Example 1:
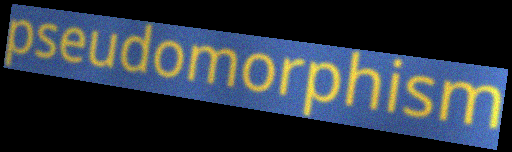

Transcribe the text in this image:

pseudomorphism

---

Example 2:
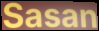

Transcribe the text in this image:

Sasan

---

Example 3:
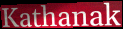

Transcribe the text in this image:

Kathanak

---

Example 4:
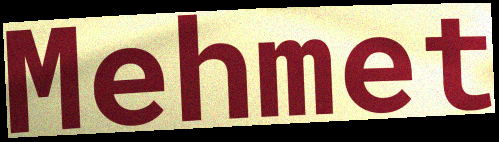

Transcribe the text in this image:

Mehmet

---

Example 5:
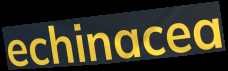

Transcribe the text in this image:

echinacea